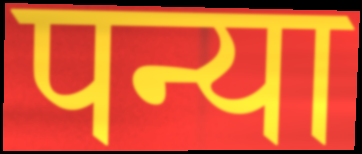
पन्या